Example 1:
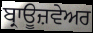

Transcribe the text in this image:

ਬ੍ਰਾਊਜ਼ਵੇਅਰ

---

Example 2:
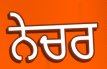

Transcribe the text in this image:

ਨੇਚਰ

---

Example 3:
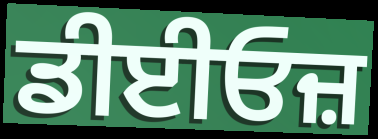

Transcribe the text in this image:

ਡੀਈਓਜ਼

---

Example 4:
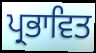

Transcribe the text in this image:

ਪ੍ਰਭਾਵਿਤ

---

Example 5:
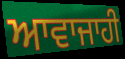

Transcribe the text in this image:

ਆਵਾਜਾਹੀ